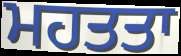
ਮਹਤਤਾ